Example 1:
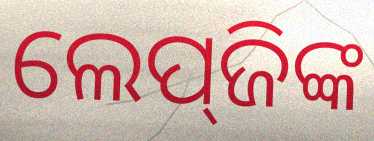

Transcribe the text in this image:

ଲେପ୍‌ଜିଙ୍କ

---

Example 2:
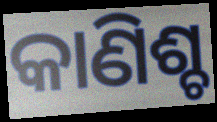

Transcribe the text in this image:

କାଣିଶ୍ଚ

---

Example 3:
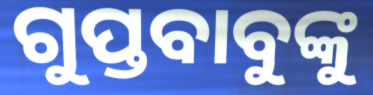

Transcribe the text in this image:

ଗୁପ୍ତବାବୁଙ୍କୁ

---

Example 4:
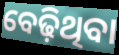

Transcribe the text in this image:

ବେଢ଼ିଥିବା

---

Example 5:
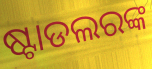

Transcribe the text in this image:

ଷ୍ଟାଡଲରଙ୍କ